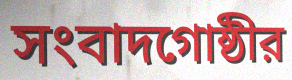
সংবাদগোষ্ঠীর